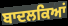
ਬਾਦਲਕਿਆਂ